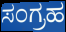
ಸಂಗ್ರಹ